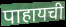
पाहायची